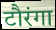
टौरंगा